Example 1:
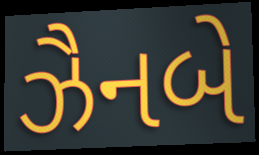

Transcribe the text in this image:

ઝૈનબે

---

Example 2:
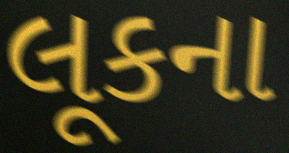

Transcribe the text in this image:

લૂકના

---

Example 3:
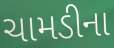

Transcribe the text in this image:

ચામડીના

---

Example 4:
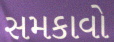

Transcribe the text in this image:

સમકાવો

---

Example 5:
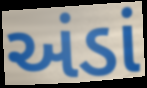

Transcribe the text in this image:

અંડાં